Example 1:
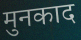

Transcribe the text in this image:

मुनकाद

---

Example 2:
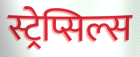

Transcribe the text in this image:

स्ट्रेप्सिल्स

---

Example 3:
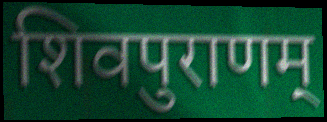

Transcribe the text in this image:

शिवपुराणम्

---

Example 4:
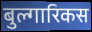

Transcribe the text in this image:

बुल्गारिकस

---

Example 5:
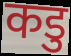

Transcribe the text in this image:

कडु